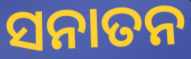
ସନାତନ